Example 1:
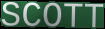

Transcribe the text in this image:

SCOTT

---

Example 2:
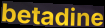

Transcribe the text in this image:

betadine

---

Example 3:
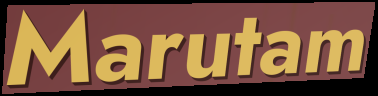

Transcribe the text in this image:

Marutam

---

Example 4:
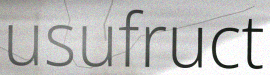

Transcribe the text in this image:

usufruct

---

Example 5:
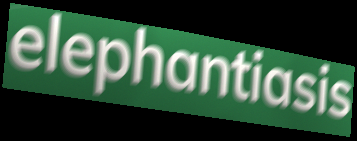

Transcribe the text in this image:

elephantiasis